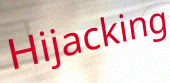
Hijacking